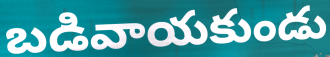
బడివాయకుండు